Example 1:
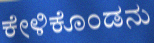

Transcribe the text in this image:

ಕೇಳಿಕೊಂಡನು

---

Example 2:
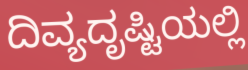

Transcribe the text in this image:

ದಿವ್ಯದೃಷ್ಟಿಯಲ್ಲಿ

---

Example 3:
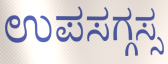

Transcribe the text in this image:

ಉಪಸಗ್ಗಸ್ಸ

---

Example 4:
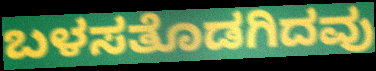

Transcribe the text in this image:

ಬಳಸತೊಡಗಿದವು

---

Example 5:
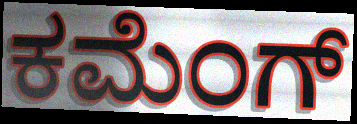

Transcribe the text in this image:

ಕಮೆಂಗ್